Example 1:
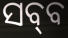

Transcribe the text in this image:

ସବ୍‌ବ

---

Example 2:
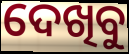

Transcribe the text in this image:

ଦେଖିବୁ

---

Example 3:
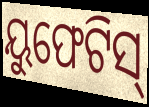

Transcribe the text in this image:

ୟୁଫେଟିସ୍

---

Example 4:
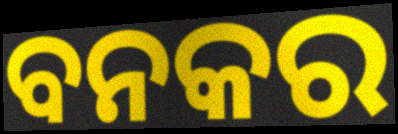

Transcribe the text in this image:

ବନକର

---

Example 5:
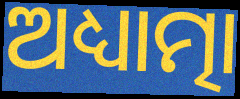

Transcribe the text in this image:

ଅଧ୍ୟାତ୍ମା